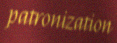
patronization